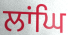
ਲਾਂਘਿ